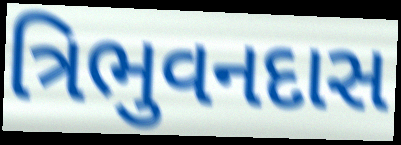
ત્રિભુવનદાસ